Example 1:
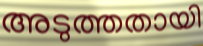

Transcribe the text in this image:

അടുത്തതായി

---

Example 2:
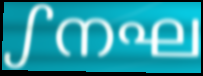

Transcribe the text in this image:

ഽനഘ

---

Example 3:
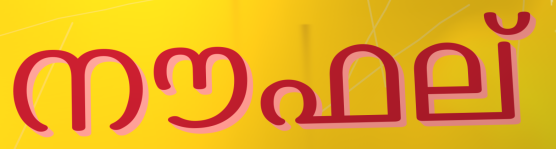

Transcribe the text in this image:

നൗഫല്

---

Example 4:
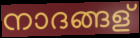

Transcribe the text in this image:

നാദങ്ങള്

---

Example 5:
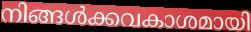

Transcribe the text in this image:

നിങ്ങൾക്കവകാശമായി